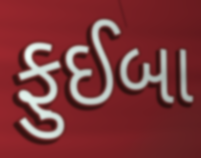
ફુઈબા